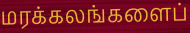
மரக்கலங்களைப்